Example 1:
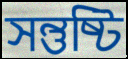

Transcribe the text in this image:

সন্তুষ্টি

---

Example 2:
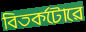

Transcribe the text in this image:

বিতৰ্কটোৱে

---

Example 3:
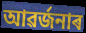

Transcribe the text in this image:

আৱৰ্জনাৰ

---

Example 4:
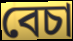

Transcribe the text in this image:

বেচা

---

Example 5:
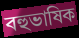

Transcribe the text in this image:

বহুভাষিক